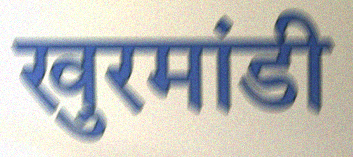
खुरमांडी